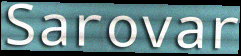
Sarovar